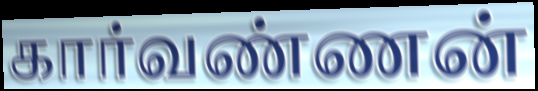
கார்வண்ணன்